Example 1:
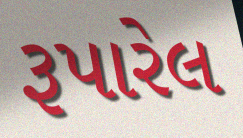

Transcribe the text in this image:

રૂપારેલ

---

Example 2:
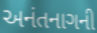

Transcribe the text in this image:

અનંતનાગની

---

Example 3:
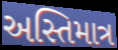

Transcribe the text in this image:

અસ્તિમાત્ર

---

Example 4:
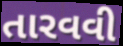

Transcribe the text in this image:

તારવવી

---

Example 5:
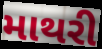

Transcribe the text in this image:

માથરી